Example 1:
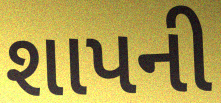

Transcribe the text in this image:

શાપની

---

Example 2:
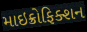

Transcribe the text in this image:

માઇક્રોફિક્શન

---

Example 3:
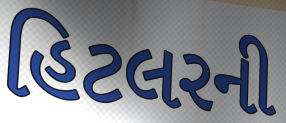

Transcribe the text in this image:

હિટલરની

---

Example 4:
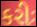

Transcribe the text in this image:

કરીઃ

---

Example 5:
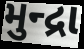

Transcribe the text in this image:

મુન્દ્રા